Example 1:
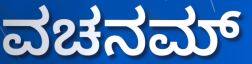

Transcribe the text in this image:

ವಚನಮ್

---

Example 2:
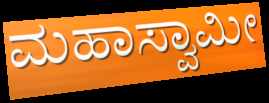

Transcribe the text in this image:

ಮಹಾಸ್ವಾಮೀ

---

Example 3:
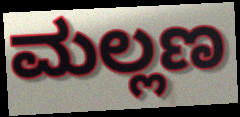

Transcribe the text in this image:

ಮಲ್ಲಣ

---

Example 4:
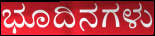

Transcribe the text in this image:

ಭೂದಿನಗಳು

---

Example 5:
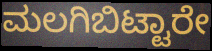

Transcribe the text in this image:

ಮಲಗಿಬಿಟ್ಟಾರೇ